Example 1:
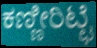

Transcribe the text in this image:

ಕಣ್ಣೀರಿಟ್ಟೆ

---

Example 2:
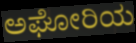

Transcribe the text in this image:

ಅಘೋರಿಯ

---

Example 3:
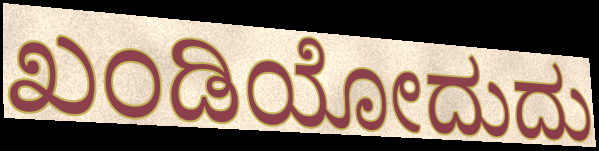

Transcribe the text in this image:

ಖಂಡಿಯೋದುದು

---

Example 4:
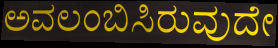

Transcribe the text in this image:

ಅವಲಂಬಿಸಿರುವುದೇ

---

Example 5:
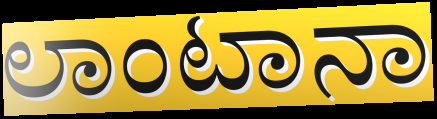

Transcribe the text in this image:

ಲಾಂಟಾನಾ